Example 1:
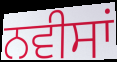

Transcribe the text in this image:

ਨਵੀਸਾਂ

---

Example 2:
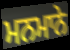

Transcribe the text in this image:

ਮਨਮਾਨੇ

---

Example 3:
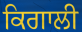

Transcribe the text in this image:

ਕਿਗਾਲੀ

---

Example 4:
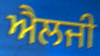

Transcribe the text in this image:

ਐਲਜੀ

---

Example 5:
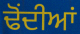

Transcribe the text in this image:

ਢੋਂਦੀਆਂ